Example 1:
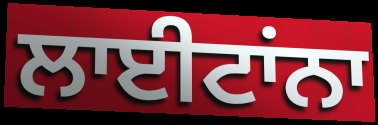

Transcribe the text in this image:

ਲਾਈਟਾਂਨਾ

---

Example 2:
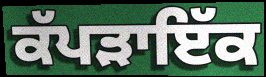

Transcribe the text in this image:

ਕੱਪੜਾਇੱਕ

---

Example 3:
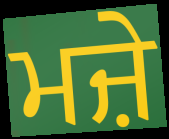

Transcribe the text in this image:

ਮਜ਼ੇ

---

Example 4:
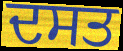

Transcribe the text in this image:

ਦਸਤ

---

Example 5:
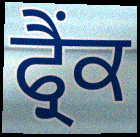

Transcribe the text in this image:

ਫ੍ਰੈਂਕ